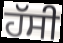
ਹੱਸੀ